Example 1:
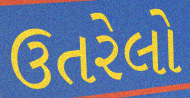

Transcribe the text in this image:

ઉતરેલો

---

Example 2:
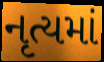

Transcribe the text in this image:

નૃત્યમાં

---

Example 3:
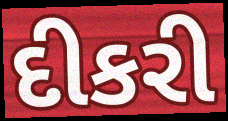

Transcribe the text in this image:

દીકરી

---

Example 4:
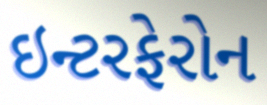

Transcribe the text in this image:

ઇન્ટરફેરોન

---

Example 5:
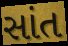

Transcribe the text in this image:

સાંત